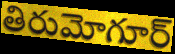
తిరుమోగూర్